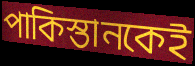
পাকিস্তানকেই